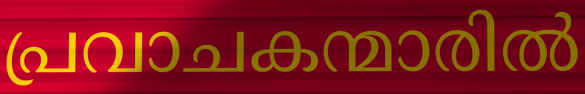
പ്രവാചകന്മാരിൽ